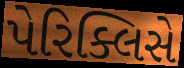
પેરિક્લિસે